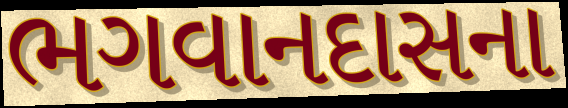
ભગવાનદાસના